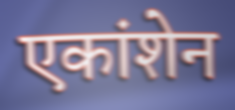
एकांशेन